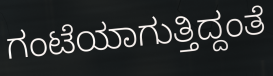
ಗಂಟೆಯಾಗುತ್ತಿದ್ದಂತೆ